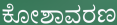
ಕೋಶಾವರಣ